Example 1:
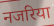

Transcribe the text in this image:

नजरिया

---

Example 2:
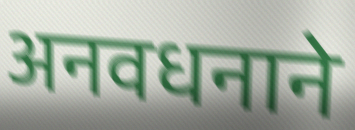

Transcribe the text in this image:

अनवधनाने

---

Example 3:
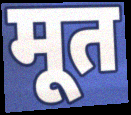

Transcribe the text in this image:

मूत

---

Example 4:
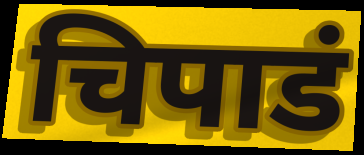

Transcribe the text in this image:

चिपाडं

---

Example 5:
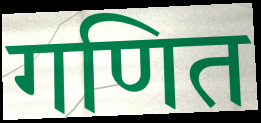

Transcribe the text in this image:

गणित